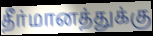
தீர்மானத்துக்கு